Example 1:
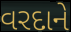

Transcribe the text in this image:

વરદાને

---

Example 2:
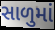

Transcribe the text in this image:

સાળુમાં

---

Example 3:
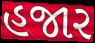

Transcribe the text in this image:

હજાર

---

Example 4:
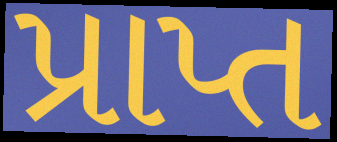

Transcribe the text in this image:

પ્રાપ્‍ત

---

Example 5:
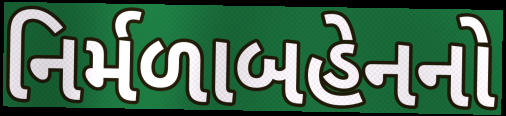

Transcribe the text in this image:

નિર્મળાબહેનનો